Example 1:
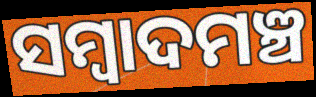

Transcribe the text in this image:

ସମ୍ୱାଦମଞ୍ଚ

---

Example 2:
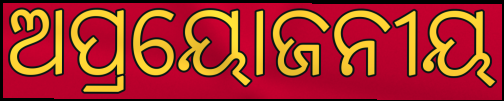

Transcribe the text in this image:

ଅପ୍ରୟୋଜନୀୟ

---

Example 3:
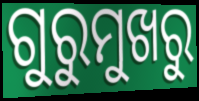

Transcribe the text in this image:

ଗୁରୁମୁଖରୁ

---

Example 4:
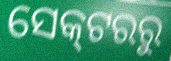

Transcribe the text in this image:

ସେକ୍‌ଟରରୁ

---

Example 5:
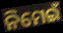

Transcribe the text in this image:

ନିମେଇଁ